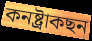
কনষ্ট্ৰাকছন